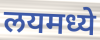
लयमध्ये